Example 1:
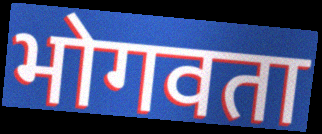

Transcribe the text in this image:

भोगवता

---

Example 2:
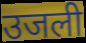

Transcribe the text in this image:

उजली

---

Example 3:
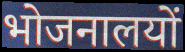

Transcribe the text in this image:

भोजनालयों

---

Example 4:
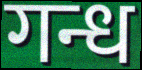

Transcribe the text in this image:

गन्ध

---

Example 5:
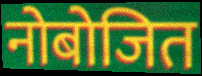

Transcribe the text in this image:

नोबोजित